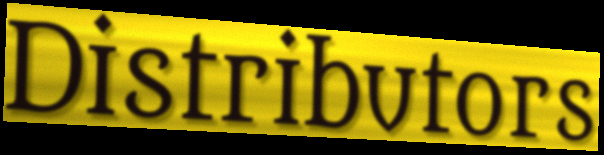
Distributors